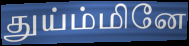
துய்ம்மினே